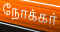
நோக்கர்